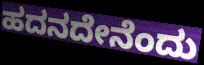
ಹದನದೇನೆಂದು